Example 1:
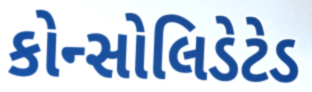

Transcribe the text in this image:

કોન્સોલિડેટેડ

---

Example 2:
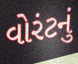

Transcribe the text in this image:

વોરંટનું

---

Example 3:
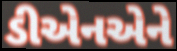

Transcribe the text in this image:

ડીએનએને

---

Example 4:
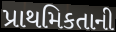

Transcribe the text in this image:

પ્રાથમિકતાની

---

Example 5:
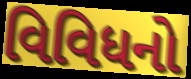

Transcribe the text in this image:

વિવિધનો